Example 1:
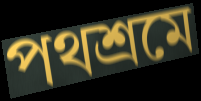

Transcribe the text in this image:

পথশ্রমে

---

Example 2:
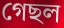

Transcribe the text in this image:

গেছল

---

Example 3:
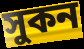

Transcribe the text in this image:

সুকন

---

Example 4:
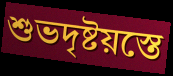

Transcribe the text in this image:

শুভদৃষ্টয়স্তে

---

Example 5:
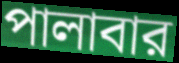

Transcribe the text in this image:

পালাবার